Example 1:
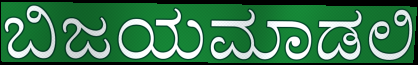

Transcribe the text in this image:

ಬಿಜಯಮಾಡಲಿ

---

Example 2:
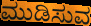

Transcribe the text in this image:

ಮುಡಿಸುವ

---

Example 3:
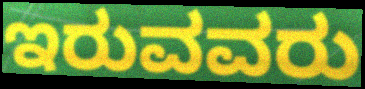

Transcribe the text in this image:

ಇರುವವರು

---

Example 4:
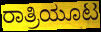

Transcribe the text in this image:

ರಾತ್ರಿಯೂಟ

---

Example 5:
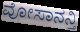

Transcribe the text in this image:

ವೋಸಾನನ್ತಿ